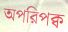
অপরিপক্ব